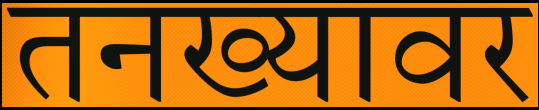
तनख्यावर